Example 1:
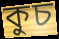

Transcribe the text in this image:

কুচ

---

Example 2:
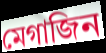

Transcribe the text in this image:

মেগাজিন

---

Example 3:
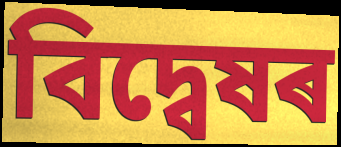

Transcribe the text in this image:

বিদ্বেষৰ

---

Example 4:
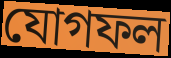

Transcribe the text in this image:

যোগফল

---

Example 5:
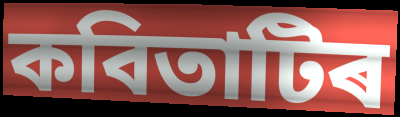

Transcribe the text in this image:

কবিতাটিৰ